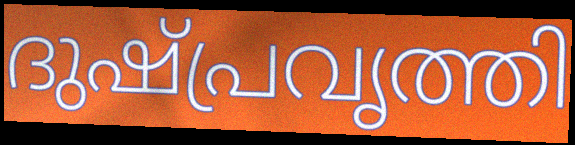
ദുഷ്പ്രവൃത്തി